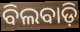
ବିଲବାଡ଼ି